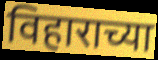
विहाराच्या